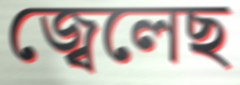
জ্বেলেছ